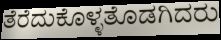
ತೆರೆದುಕೊಳ್ಳತೊಡಗಿದರು